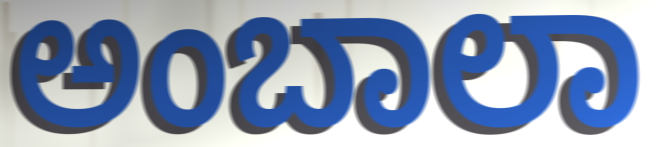
ಅಂಬಾಲಾ